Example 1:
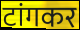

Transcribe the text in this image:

टांगकर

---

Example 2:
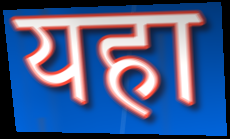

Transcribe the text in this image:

यहा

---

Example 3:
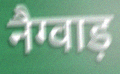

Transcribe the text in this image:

नैग्वाड़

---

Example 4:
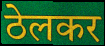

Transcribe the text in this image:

ठेलकर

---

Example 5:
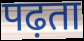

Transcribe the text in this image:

पढ़ता